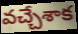
వచ్చేశాక